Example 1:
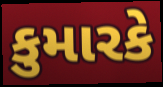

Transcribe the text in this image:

કુમારકે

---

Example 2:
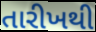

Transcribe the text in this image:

તારીખથી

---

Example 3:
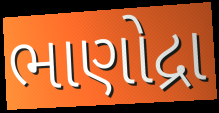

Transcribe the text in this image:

ભાણોદ્રા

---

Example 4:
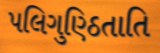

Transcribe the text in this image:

પલિગુણ્ઠિતાતિ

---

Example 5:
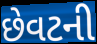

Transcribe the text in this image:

છેવટની